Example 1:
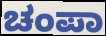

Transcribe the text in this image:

ಚಂಪಾ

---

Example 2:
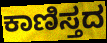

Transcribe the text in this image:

ಕಾಣಿಸ್ತದ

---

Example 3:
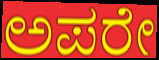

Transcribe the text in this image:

ಅಪರೇ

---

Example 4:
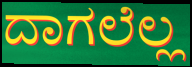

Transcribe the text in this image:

ದಾಗಲೆಲ್ಲ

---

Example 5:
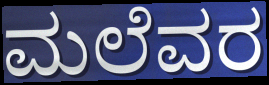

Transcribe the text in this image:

ಮಲೆವರ